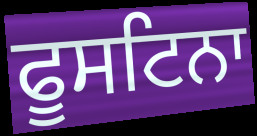
ਫੂਸਟਿਨਾ